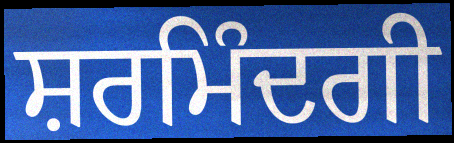
ਸ਼ਰਮਿੰਦਗੀ